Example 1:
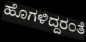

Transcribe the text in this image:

ಹೊಗಳಿದ್ದರಂತೆ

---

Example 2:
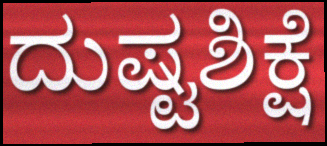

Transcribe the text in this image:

ದುಷ್ಟಶಿಕ್ಷೆ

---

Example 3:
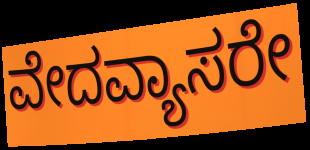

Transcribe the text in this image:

ವೇದವ್ಯಾಸರೇ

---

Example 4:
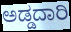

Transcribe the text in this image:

ಅಡ್ಡದಾರಿ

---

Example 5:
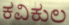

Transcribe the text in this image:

ಕವಿಕುಲ